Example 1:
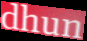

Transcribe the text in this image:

dhun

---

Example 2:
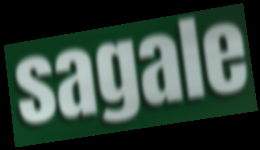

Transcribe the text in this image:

sagale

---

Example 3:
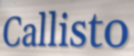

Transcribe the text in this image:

Callisto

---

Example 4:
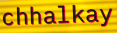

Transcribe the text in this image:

chhalkay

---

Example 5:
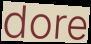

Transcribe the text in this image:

dore